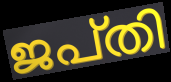
ജപ്‌തി